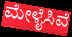
ಮೇಳೈಸಿವೆ